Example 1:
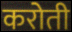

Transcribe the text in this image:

करोती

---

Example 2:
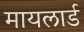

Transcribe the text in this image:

मायलार्ड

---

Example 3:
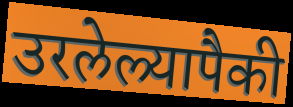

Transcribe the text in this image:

उरलेल्यापैकी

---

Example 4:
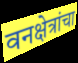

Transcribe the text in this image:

वनक्षेत्रांचा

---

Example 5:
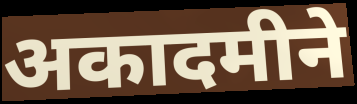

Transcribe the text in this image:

अकादमीने